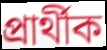
প্ৰাৰ্থীক